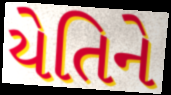
યેતિને